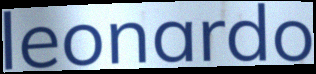
leonardo